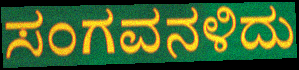
ಸಂಗವನಳಿದು